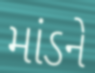
માંડને